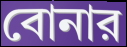
বোনার